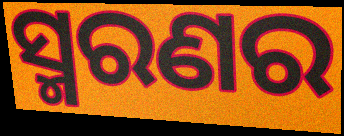
ସ୍ମରଣର